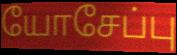
யோசேப்பு